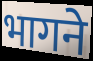
भागने